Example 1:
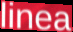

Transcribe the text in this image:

linea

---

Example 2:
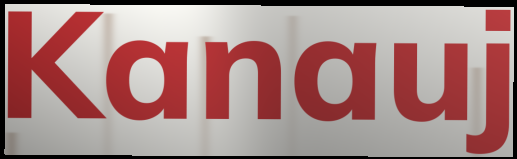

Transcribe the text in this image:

Kanauj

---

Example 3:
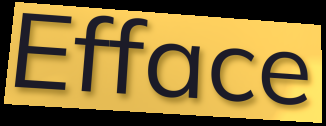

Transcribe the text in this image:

Efface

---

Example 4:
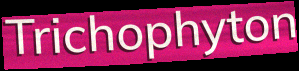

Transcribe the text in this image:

Trichophyton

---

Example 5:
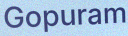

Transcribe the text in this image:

Gopuram